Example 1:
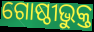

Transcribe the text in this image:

ଗୋଷ୍ଠୀଭୁକ୍ତ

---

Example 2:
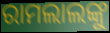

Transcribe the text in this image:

ରାମଲାଲଙ୍କୁ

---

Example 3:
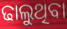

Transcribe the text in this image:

ଢାଲୁଥିବା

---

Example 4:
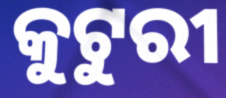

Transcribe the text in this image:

କୁଟୁରୀ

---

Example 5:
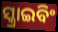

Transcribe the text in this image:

ସ୍କ୍ରାଇବିଂ